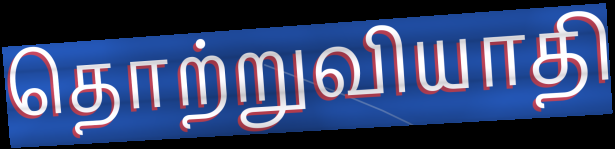
தொற்றுவியாதி